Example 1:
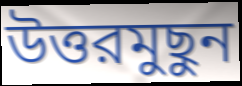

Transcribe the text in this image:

উত্তরমুছুন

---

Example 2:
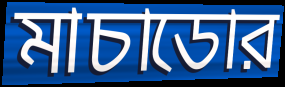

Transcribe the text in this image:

মাচাডোর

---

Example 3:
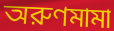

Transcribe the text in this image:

অরুণমামা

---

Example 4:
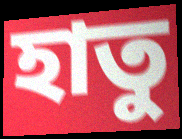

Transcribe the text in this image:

হাতু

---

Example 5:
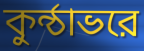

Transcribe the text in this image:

কুন্ঠাভরে